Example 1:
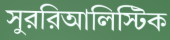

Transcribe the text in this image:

সুররিআলিস্টিক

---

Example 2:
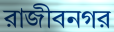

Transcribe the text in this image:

রাজীবনগর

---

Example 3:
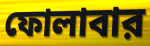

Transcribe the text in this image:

ফোলাবার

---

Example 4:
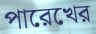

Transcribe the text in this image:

পারেখের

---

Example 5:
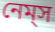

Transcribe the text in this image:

নেম্‌স